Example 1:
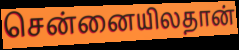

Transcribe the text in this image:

சென்னையிலதான்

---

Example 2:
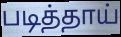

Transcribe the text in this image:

படித்தாய்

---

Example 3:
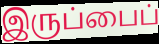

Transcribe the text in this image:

இருப்பைப்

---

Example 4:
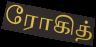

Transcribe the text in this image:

ரோகித்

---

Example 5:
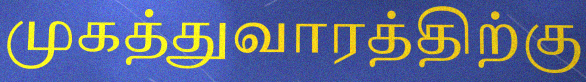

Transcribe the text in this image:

முகத்துவாரத்திற்கு